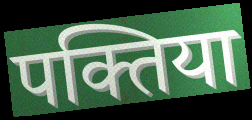
पक्तिया